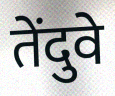
तेंदुवे